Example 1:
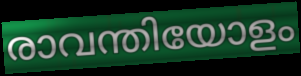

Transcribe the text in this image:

രാവന്തിയോളം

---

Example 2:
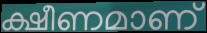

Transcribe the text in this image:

ക്ഷീണമാണ്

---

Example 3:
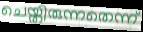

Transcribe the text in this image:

ചെയ്തിരുന്നതെന്ന്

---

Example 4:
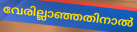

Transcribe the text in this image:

വേരില്ലാഞ്ഞതിനാൽ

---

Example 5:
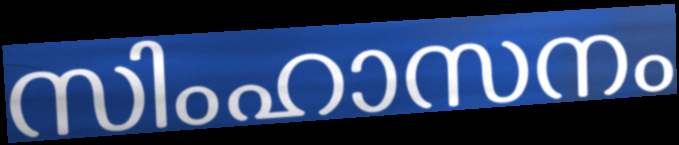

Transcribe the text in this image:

സിംഹാസനം